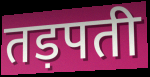
तड़पती